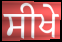
ਸੀਖੇ